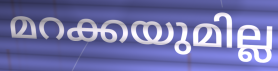
മറക്കയുമില്ല